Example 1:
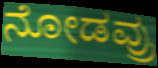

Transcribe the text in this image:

ನೋಡವ್ರು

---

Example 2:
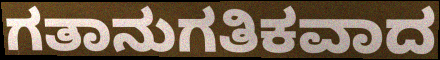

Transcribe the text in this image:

ಗತಾನುಗತಿಕವಾದ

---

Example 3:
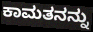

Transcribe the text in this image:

ಕಾಮತನನ್ನು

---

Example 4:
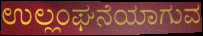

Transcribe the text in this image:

ಉಲ್ಲಂಘನೆಯಾಗುವ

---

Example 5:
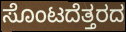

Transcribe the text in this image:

ಸೊಂಟದೆತ್ತರದ